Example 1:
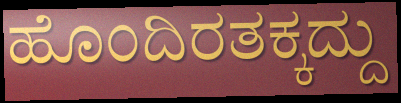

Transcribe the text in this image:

ಹೊಂದಿರತಕ್ಕದ್ದು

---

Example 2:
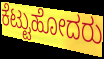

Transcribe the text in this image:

ಕೆಟ್ಟುಹೋದರು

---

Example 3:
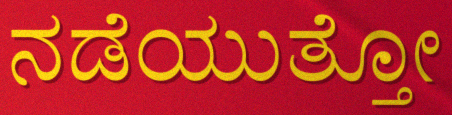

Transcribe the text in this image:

ನಡೆಯುತ್ತೋ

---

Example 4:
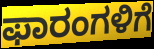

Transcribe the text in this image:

ಫಾರಂಗಳಿಗೆ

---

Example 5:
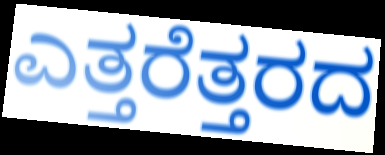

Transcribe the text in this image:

ಎತ್ತರೆತ್ತರದ